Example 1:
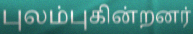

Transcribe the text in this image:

புலம்புகின்றனர்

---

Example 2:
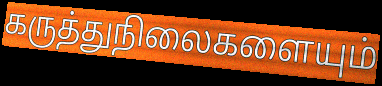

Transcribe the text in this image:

கருத்துநிலைகளையும்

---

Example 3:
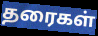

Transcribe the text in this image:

தரைகள்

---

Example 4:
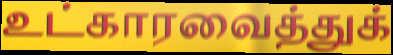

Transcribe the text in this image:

உட்காரவைத்துக்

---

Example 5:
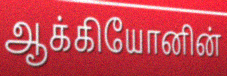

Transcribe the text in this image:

ஆக்கியோனின்